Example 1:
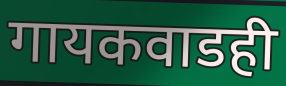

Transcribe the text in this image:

गायकवाडही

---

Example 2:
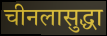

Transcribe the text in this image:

चीनलासुद्धा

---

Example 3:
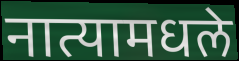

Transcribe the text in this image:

नात्यामधले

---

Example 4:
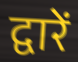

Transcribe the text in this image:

द्वारें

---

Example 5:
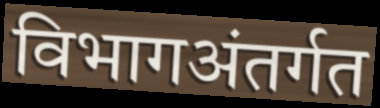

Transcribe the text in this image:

विभागअंतर्गत